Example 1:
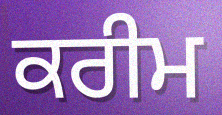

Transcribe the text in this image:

ਕਰੀਮ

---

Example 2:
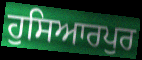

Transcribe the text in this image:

ਹੁਸਿਆਰਪੁਰ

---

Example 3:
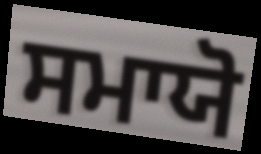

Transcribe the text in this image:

ਸਮਾਯੋ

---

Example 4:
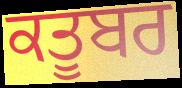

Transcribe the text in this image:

ਕਤੂਬਰ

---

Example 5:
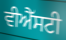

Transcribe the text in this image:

ਵੀਐੱਸਟੀ